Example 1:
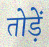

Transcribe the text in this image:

तोड़ें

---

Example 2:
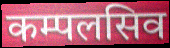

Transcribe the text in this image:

कम्पलसिव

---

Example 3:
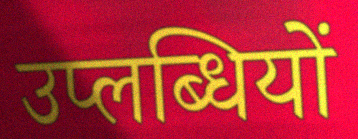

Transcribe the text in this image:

उप्लब्धियों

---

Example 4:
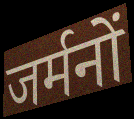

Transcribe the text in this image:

जर्मनों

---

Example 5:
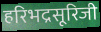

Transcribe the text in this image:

हरिभद्रसूरिजी